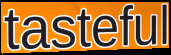
tasteful